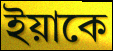
ইয়াকে